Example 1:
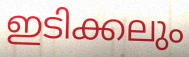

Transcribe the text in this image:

ഇടിക്കലും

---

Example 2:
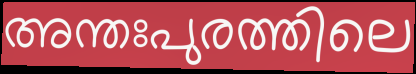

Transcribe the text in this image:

അന്തഃപുരത്തിലെ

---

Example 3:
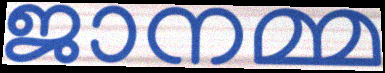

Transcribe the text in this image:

ജാനമ്മ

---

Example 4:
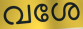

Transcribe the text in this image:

വശേ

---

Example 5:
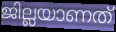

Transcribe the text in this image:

ജില്ലയാണത്